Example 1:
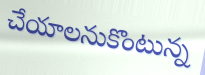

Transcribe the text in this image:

చేయాలనుకొంటున్న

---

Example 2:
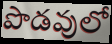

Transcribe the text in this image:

పొడవులో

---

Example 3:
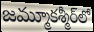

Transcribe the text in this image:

జమ్మూకశ్మీర్‌లో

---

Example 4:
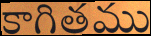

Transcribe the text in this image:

కాగితము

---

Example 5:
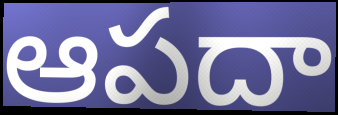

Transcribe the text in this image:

ఆపదా